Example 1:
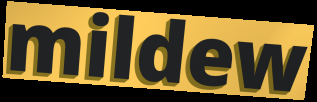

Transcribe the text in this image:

mildew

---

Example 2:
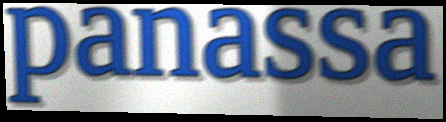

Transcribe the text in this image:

panassa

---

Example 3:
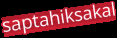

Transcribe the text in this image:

saptahiksakal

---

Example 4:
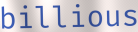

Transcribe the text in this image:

billious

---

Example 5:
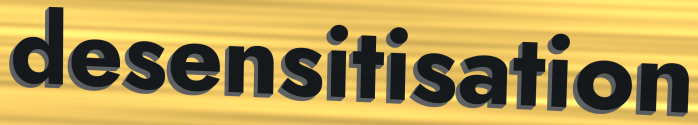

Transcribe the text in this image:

desensitisation